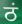
ठं